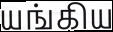
யங்கிய